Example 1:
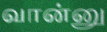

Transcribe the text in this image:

வான்னு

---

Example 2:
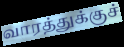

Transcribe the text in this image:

வாரத்துக்குச்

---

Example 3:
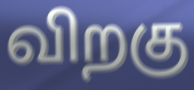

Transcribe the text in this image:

விறகு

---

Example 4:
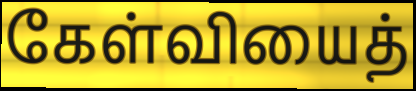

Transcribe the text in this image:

கேள்வியைத்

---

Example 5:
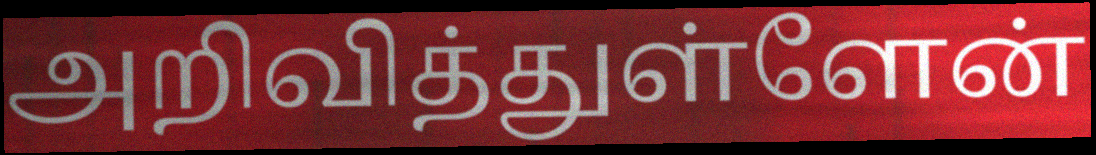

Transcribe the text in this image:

அறிவித்துள்ளேன்